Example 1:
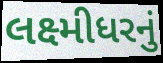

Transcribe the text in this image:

લક્ષ્મીધરનું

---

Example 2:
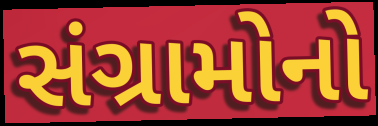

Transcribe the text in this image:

સંગ્રામોનો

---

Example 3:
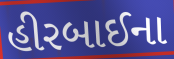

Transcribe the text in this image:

હીરબાઈના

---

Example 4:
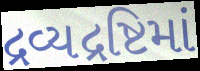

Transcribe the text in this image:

દ્રવ્યદ્રષ્ટિમાં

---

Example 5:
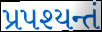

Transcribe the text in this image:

પ્રપશ્યન્તં